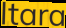
Itara